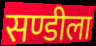
सण्डीला